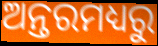
ଅନ୍ତରମଧ୍ୟରୁ